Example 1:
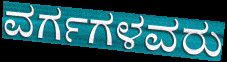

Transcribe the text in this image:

ವರ್ಗಗಳವರು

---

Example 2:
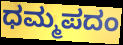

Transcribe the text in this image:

ಧಮ್ಮಪದಂ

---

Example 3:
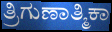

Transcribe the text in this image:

ತ್ರಿಗುಣಾತ್ಮಿಕಾ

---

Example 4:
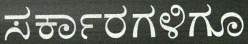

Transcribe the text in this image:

ಸರ್ಕಾರಗಳಿಗೂ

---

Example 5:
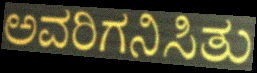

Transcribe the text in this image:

ಅವರಿಗನಿಸಿತು